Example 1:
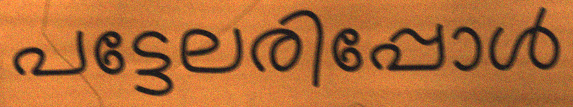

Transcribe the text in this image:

പട്ടേലരിപ്പോൾ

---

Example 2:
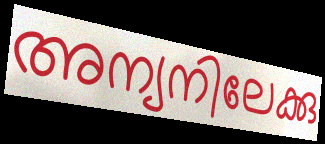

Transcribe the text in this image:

അന്യനിലേക്കു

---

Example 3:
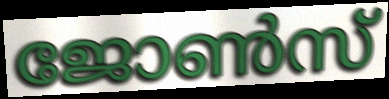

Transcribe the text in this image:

ജോൺസ്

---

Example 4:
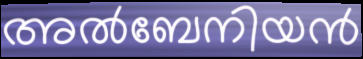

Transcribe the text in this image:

അൽബേനിയൻ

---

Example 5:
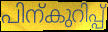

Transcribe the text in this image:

പിന്കുറിപ്പ്